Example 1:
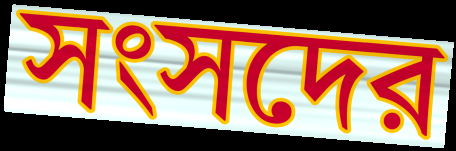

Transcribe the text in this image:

সংসদের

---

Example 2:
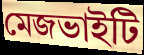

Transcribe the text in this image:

মেজভাইটি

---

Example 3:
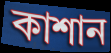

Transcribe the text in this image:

কাশান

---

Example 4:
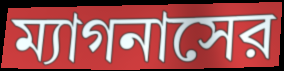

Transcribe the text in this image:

ম্যাগনাসের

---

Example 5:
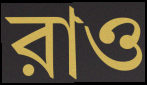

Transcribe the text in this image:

রাও